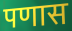
पणास